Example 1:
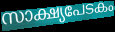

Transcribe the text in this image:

സാക്ഷ്യപേടകം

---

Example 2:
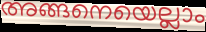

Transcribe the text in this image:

അങ്ങനെയെല്ലാം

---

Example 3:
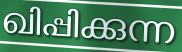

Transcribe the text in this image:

ഖിപ്പിക്കുന്ന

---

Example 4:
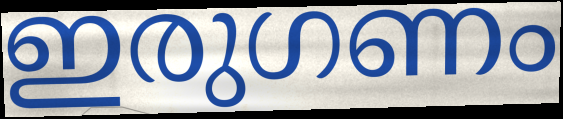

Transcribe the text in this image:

ഇരുഗണം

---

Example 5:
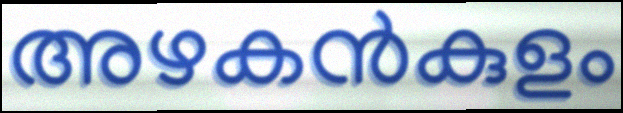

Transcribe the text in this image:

അഴകൻകുളം